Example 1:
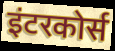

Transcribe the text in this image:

इंटरकोर्स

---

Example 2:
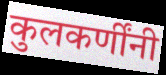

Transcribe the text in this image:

कुलकर्णींनी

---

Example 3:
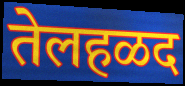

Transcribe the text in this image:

तेलहळद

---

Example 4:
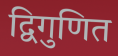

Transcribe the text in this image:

द्विगुणित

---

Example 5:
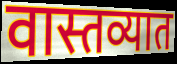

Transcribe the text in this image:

वास्तव्यात